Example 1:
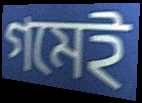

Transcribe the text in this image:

গমেই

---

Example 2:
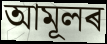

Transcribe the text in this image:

আমূলৰ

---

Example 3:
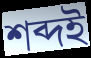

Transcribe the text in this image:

শব্দই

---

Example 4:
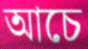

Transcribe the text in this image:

আচে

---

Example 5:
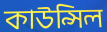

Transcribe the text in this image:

কাউন্সিল